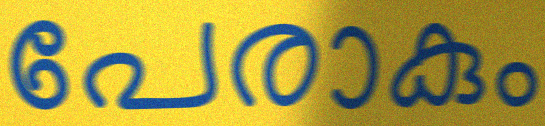
പേരാകും